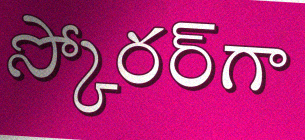
స్కోరర్‌గా